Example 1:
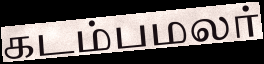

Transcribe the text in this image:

கடம்பமலர்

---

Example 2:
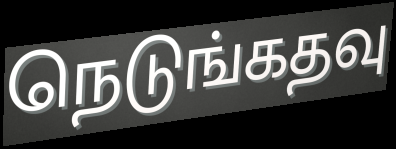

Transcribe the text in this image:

நெடுங்கதவு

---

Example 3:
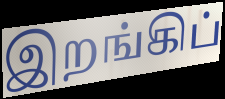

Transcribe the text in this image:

இறங்கிப்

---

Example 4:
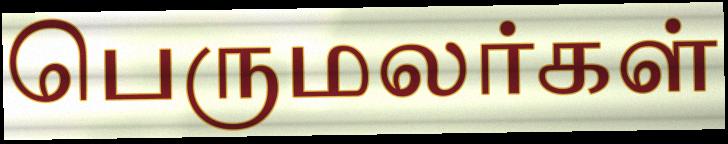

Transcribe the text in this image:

பெருமலர்கள்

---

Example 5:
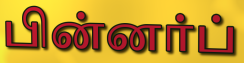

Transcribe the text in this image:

பின்னர்ப்